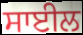
ਸਾਈਲ